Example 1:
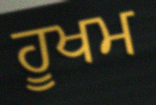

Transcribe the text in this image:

ਹੂਖਮ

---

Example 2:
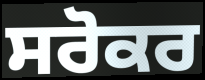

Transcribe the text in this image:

ਸਰੋਕਰ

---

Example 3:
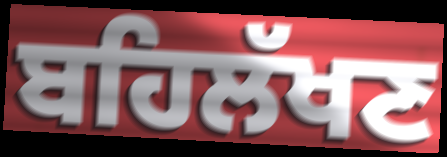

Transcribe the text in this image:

ਬਹਿਲੱਖਣ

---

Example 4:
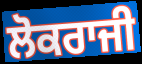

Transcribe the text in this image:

ਲੋਕਰਾਜੀ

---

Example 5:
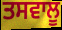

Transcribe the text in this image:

ਤਸਵਾਲੂ